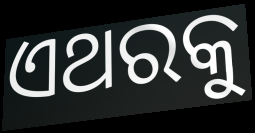
ଏଥରକୁ